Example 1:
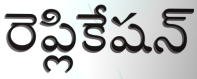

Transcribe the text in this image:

రెప్లికేషన్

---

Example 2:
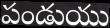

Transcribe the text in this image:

పండుయు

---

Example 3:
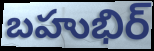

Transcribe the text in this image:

బహుభిర్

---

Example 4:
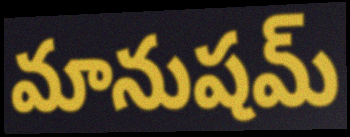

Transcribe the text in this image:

మానుషమ్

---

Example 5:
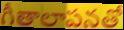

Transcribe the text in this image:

గీతాలాపనతో